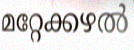
മറ്റേക്കഴൽ